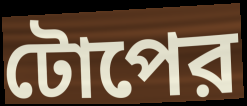
টোপের